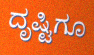
ದೃಷ್ಟಿಗೂ